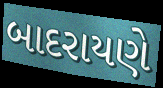
બાદરાયણે